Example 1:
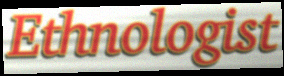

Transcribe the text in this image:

Ethnologist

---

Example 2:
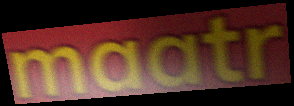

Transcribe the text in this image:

maatr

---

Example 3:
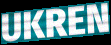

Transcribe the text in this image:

UKREN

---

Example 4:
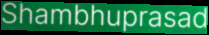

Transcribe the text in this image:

Shambhuprasad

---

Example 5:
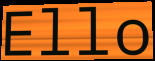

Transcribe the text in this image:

Ello